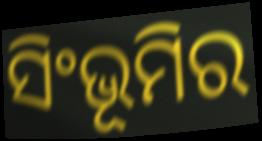
ସିଂଭୂମିର